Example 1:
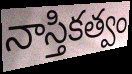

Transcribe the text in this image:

నాస్తికత్వం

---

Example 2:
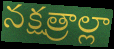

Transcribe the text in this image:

నక్షత్రాల్లా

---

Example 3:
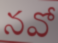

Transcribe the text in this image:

నవో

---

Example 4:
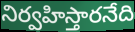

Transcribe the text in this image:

నిర్వహిస్తారనేది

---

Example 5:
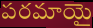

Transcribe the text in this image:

పరమాయై